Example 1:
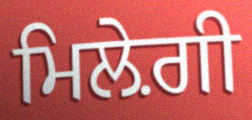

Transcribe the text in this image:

ਮਿਲ਼ੇਗੀ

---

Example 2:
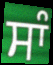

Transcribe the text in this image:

ਸਾੰ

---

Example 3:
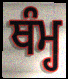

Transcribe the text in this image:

ਥੰਮ੍ਹ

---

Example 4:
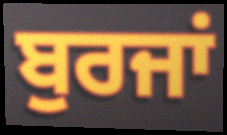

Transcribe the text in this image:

ਬੁਰਜਾਂ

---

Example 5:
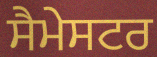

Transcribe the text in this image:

ਸੈਮੇਸਟਰ